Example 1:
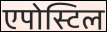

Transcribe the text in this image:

एपोस्टिल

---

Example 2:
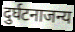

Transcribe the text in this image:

दुर्घटनाजन्य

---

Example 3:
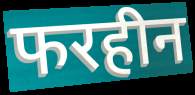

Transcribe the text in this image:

फरहीन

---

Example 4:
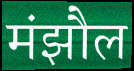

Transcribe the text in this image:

मंझौल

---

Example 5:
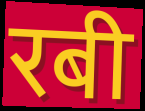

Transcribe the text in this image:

रबी